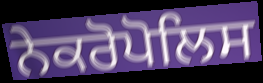
ਨੇਕਰੋਪੋਲਿਸ